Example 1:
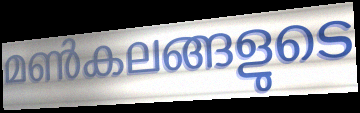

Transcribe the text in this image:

മൺകലങ്ങളുടെ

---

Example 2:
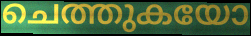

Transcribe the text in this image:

ചെത്തുകയോ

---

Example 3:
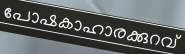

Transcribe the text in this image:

പോഷകാഹാരക്കുറവ്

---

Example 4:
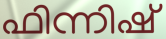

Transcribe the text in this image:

ഫിന്നിഷ്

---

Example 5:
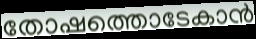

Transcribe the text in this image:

തോഷത്തൊടേകാൻ